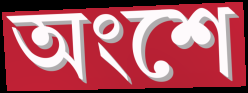
অংশে